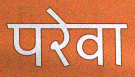
परेवा